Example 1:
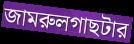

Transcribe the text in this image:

জামরুলগাছটার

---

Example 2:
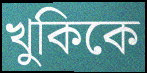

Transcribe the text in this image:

খুকিকে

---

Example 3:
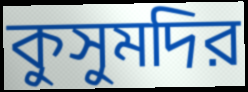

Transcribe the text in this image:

কুসুমদির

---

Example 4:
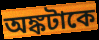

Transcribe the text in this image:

অঙ্কটাকে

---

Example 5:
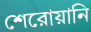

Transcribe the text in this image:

শেরোয়ানি